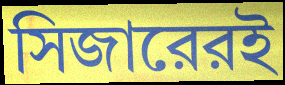
সিজারেরই